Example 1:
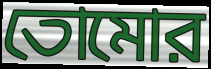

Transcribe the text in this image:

তোমোর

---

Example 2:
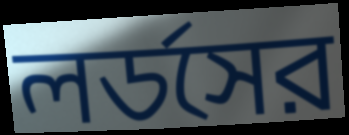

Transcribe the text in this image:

লর্ডসের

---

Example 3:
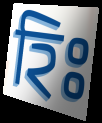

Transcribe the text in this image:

হিঃ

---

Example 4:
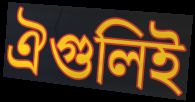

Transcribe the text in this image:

ঐগুলিই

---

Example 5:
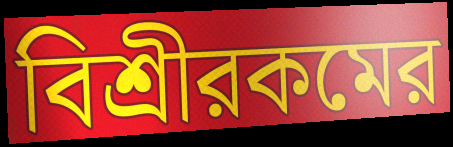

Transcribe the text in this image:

বিশ্রীরকমের